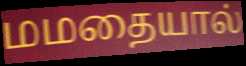
மமதையால்